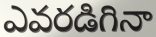
ఎవరడిగినా